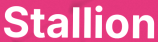
Stallion